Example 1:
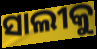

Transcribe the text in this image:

ସାଲୀକୁ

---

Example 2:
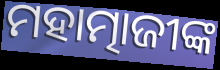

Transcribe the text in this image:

ମହାତ୍ମାଜୀଙ୍କ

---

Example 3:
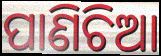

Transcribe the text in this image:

ପାଣିଚିଆ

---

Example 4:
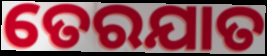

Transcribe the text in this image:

ତେରଯାତ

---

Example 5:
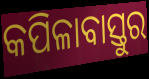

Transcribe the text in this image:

କପିଳାବାସ୍ତୁର